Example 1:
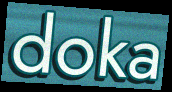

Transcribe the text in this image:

doka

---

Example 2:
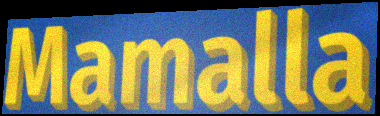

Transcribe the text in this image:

Mamalla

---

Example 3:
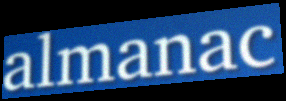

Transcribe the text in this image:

almanac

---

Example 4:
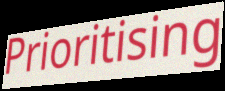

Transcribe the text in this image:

Prioritising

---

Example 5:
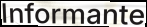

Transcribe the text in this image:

Informante